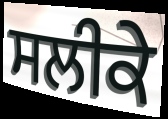
ਸਲੀਕੇ